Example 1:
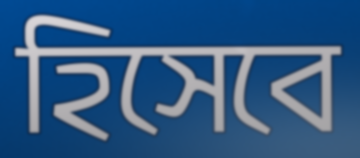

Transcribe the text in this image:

হিসেবে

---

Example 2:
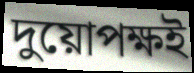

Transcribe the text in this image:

দুয়োপক্ষই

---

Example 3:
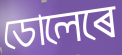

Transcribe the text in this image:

ডোলেৰে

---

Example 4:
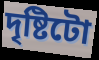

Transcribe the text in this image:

দৃষ্টিটো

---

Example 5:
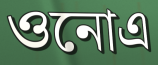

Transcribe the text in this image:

ওনোএ